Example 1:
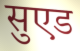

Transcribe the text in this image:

सुएड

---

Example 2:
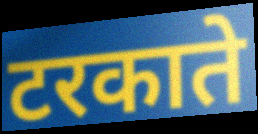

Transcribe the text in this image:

टरकाते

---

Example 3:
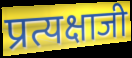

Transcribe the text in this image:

प्रत्यक्षाजी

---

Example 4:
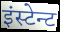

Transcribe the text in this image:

इंस्टेन्ट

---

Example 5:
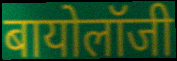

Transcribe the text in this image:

बायोलॉजी